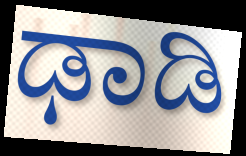
ಢಾಡಿ